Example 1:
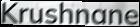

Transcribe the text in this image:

Krushnane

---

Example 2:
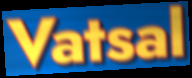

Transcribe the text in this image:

Vatsal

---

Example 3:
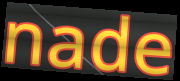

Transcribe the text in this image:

nade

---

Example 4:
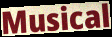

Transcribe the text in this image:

Musical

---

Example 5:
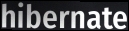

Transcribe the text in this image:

hibernate